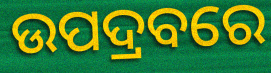
ଉପଦ୍ରବରେ